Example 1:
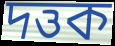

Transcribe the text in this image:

দত্তক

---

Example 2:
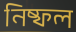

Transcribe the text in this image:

নিষ্ফল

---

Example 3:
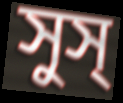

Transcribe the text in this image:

সুস্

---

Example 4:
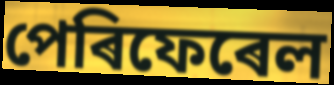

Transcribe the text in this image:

পেৰিফেৰেল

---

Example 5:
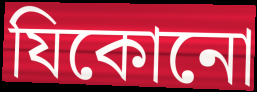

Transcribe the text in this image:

যিকোনো